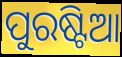
ପୁରଷ୍ଟିଆ